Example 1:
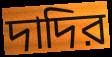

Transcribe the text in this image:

দাদির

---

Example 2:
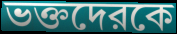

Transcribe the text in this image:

ভক্তদেরকে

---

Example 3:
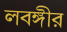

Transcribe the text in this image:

লবঙ্গীর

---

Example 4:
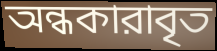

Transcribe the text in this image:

অন্ধকারাবৃত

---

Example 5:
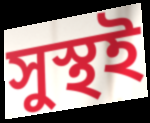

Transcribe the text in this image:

সুস্থই